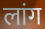
लांग